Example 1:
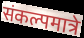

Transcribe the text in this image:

संकल्पमात्रे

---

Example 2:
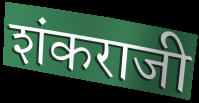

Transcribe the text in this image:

शंकराजी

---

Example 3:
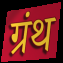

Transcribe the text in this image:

ग्रंथ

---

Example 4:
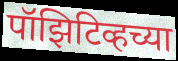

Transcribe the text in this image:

पॉझिटिव्हच्या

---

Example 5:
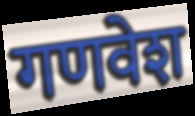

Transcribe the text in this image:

गणवेश